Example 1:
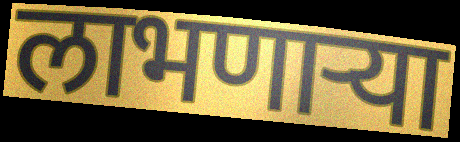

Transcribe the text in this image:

लाभणार्‍या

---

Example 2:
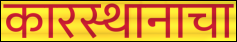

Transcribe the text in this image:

कारस्थानाचा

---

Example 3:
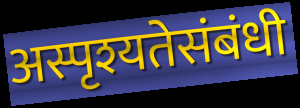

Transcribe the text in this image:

अस्पृश्यतेसंबंधी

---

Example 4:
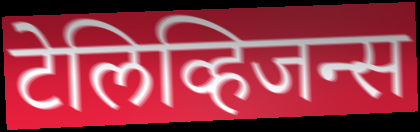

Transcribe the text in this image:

टेलिव्हिजन्स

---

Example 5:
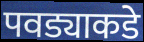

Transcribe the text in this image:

पवड्याकडे